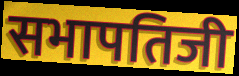
सभापतिजी